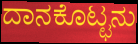
ದಾನಕೊಟ್ಟನು